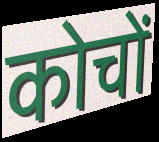
कोचों